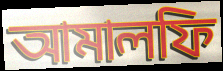
আমালফি